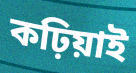
কঢ়িয়াই